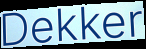
Dekker